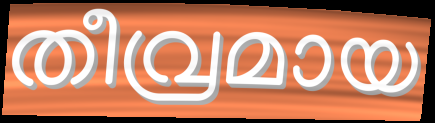
തീവ്രമായ